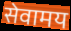
सेवामय